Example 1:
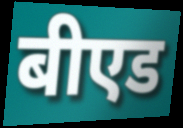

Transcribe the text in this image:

बीएड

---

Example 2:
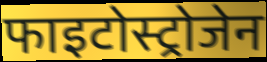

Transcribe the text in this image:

फाइटोस्ट्रोजेन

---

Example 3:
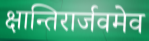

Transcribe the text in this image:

क्षान्तिरार्जवमेव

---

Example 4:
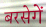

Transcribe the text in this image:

बरसेगें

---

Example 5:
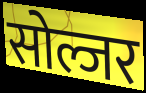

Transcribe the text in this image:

सोल्जर